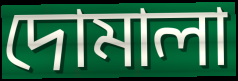
দোমালা